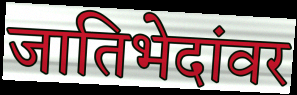
जातिभेदांवर